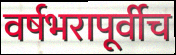
वर्षभरापूर्वीच